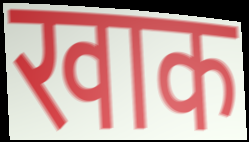
खाक